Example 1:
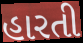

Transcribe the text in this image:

હારતી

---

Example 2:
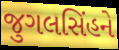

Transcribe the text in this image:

જુગલસિંહને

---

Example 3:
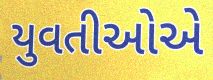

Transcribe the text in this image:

યુવતીઓએ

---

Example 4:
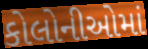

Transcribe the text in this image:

કોલોનીઓમાં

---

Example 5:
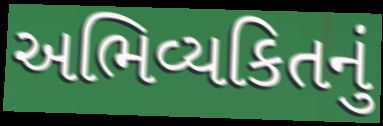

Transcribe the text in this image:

અભિવ્યકિતનું